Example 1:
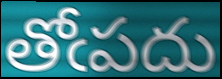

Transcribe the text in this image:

తోఁపదు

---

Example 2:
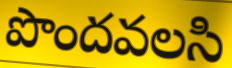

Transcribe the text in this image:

పొందవలసి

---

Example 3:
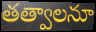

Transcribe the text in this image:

తత్వాలనూ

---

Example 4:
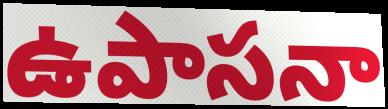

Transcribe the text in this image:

ఉపాసనా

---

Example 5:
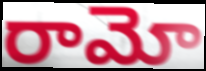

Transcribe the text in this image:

రామో